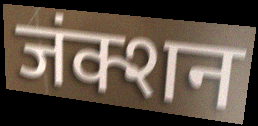
जंक्शन